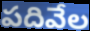
పదివేల